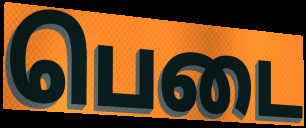
பெடை